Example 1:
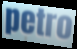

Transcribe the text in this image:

petro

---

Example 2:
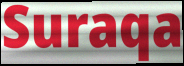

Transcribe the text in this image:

Suraqa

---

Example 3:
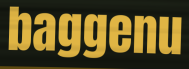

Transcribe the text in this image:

baggenu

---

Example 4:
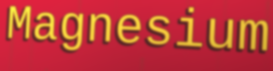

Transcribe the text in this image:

Magnesium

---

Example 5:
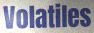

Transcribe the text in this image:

Volatiles